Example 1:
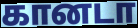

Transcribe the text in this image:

கானடா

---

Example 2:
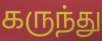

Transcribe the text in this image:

கருந்து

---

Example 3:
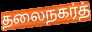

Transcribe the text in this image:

தலைநகர்த்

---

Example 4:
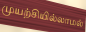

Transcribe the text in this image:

முயற்சியில்லாமல்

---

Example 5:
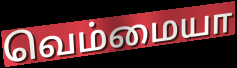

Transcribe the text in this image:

வெம்மையா